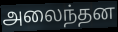
அலைந்தன